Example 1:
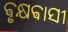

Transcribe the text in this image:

ଵୃକ୍ଷଵାସୀ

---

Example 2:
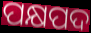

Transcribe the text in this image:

ପକ୍ଷପଦ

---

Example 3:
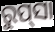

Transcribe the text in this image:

ରୁପ୍‍ସା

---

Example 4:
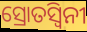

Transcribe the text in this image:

ସ୍ରୋତସ୍ୱିନୀ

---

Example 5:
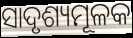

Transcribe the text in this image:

ସାଦୃଶ୍ୟମୂଳକ